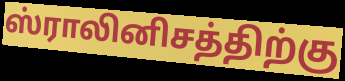
ஸ்ராலினிசத்திற்கு